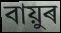
বায়ুৰ